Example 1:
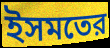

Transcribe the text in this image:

ইসমতের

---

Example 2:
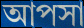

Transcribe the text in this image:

আপসা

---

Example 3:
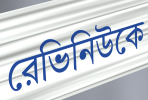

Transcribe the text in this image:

রেভিনিউকে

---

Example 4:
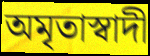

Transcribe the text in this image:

অমৃতাস্বাদী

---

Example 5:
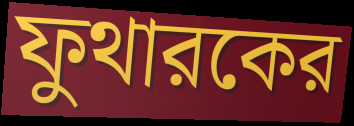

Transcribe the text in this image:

ফুথারকের